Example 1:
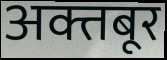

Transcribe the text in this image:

अक्तबूर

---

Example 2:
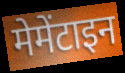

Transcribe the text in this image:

मेमेंटाइन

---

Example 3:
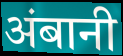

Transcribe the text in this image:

अंबानी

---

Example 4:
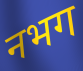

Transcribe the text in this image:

नभग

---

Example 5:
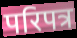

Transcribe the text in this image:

परिपत्र